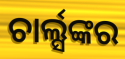
ଚାର୍ଲ୍ସଙ୍କର